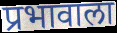
प्रभावाला